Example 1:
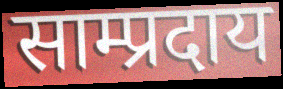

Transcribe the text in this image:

साम्प्रदाय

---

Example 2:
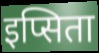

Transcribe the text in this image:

इप्सिता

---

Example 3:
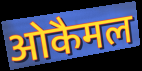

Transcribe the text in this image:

ओकैमल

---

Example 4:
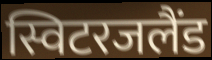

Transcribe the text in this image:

स्विटरजलैंड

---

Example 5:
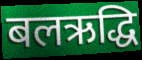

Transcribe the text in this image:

बलऋद्धि